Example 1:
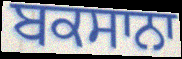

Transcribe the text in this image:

ਬਕਸਾਨਾ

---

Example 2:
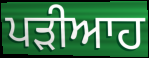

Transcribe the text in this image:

ਪੜੀਆਹ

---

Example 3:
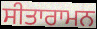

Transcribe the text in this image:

ਸੀਤਾਰਾਮਨ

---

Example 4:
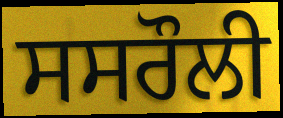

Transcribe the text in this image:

ਸਸਰੌਲੀ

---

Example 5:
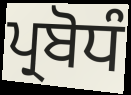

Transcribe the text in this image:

ਪ੍ਰਬੋਧੰ